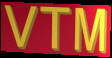
VTM